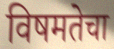
विषमतेचा